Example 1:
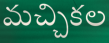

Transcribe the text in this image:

మచ్చికల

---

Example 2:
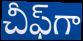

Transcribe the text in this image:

చీఫ్‌గా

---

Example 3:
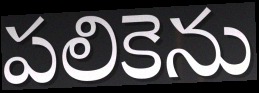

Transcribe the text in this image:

పలికెను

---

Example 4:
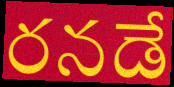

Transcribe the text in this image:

రనడే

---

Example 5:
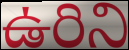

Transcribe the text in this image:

ఉరిని